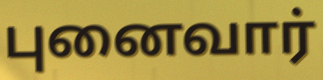
புனைவார்